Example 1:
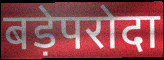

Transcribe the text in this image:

बड़ेपरोदा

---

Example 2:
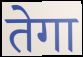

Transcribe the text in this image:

तेगा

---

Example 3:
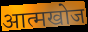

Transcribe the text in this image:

आत्मखोज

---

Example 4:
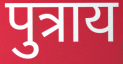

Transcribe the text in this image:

पुत्राय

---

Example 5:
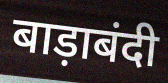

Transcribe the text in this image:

बाड़ाबंदी